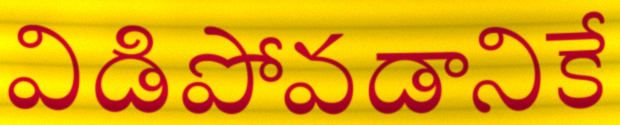
విడిపోవడానికే